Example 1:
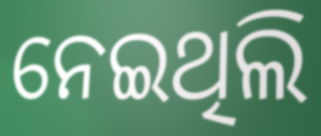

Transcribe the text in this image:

ନେଇଥିଲି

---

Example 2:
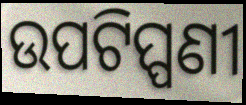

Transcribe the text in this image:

ଉପଟିପ୍ପଣୀ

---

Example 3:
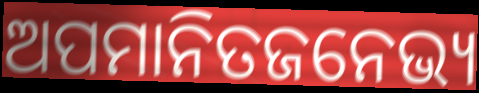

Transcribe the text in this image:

ଅପମାନିତଜନେଭ୍ୟ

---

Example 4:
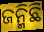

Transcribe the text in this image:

ଜନ୍ମିଛି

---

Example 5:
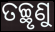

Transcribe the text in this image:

ତଚ୍ଛୃଣୁ